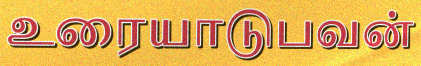
உரையாடுபவன்